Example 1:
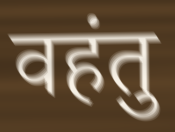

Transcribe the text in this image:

वहंतु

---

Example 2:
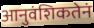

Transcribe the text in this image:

आनुवंशिकतेनं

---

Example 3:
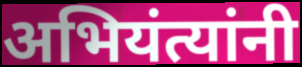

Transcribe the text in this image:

अभियंत्यांनी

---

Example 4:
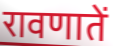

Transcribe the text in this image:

रावणातें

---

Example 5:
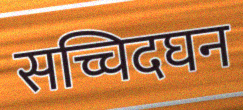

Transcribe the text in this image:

सच्चिदघन